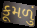
કૂમળું